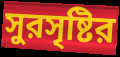
সুরসৃষ্টির